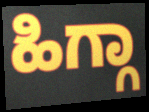
ಹಿಗ್ಗಾ